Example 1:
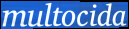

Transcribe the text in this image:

multocida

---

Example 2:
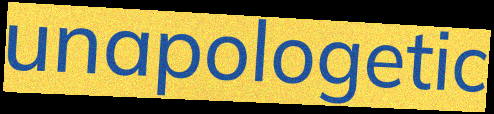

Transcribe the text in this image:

unapologetic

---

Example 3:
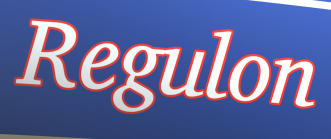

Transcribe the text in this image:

Regulon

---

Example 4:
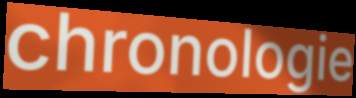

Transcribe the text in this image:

chronologie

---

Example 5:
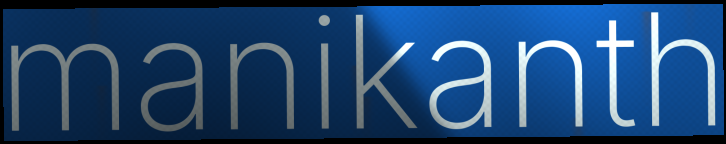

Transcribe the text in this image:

manikanth